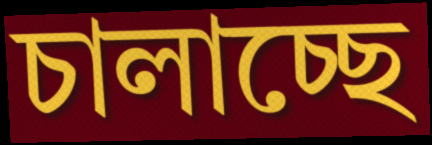
চালাচ্ছে